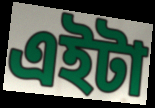
এইটা